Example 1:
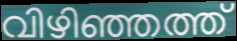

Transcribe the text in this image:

വിഴിഞ്ഞത്ത്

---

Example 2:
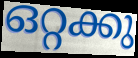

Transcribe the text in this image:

ഒറ്റക്കു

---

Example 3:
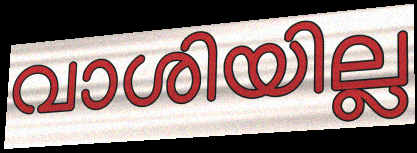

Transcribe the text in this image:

വാശിയില്ല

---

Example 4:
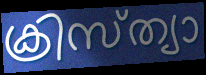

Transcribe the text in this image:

ക്രിസ്‌ത്യാ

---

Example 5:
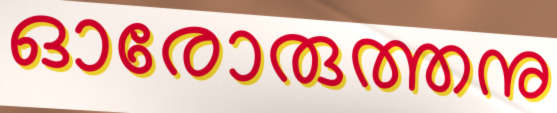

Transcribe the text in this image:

ഓരോരുത്തനു